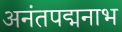
अनंतपद्मनाभ